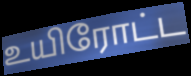
உயிரோட்ட